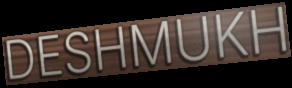
DESHMUKH